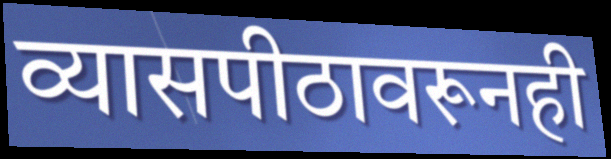
व्यासपीठावरूनही